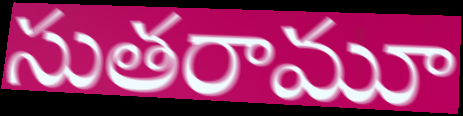
సుతరామూ